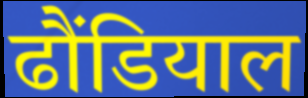
ढौंडियाल